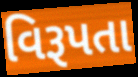
વિરૂપતા